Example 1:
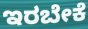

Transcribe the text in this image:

ಇರಬೇಕೆ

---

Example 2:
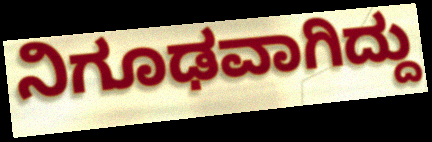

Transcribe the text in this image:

ನಿಗೂಢವಾಗಿದ್ದು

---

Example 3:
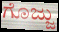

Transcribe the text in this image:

ಗೊಜ್ಜು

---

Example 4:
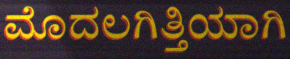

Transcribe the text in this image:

ಮೊದಲಗಿತ್ತಿಯಾಗಿ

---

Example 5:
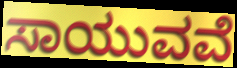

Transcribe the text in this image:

ಸಾಯುವವೆ